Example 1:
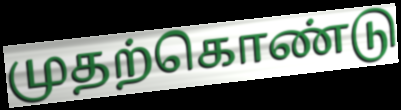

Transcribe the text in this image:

முதற்கொண்டு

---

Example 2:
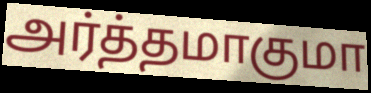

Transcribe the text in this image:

அர்த்தமாகுமா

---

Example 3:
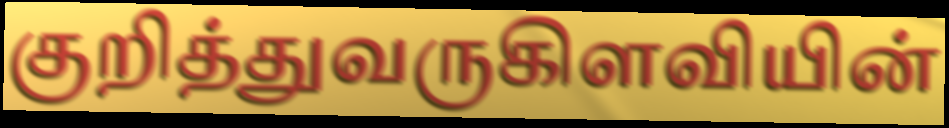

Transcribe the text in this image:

குறித்துவருகிளவியின்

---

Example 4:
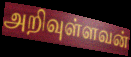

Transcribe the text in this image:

அறிவுள்ளவன்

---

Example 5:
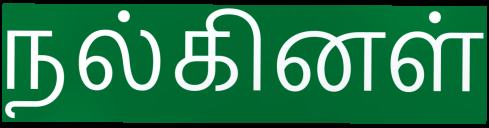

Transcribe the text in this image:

நல்கினள்